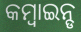
କମ୍ବାଇନ୍ଡ